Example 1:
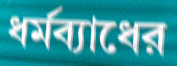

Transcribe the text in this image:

ধর্মব্যাধের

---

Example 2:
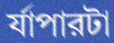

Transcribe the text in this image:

র্যাপারটা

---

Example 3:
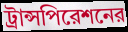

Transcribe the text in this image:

ট্রান্সপিরেশনের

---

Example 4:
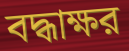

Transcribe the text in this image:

বদ্ধাক্ষর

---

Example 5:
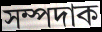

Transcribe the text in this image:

সম্পদাক